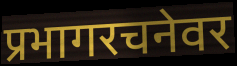
प्रभागरचनेवर